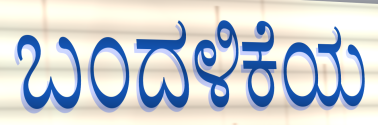
ಬಂದಳಿಕೆಯ